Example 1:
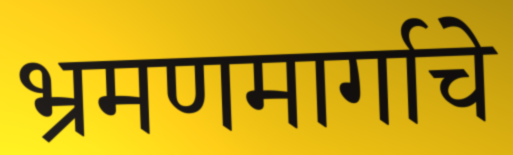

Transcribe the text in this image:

भ्रमणमार्गाचे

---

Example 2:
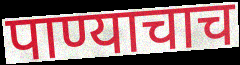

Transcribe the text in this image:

पाण्याचाच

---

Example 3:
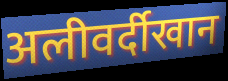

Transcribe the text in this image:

अलीवर्दीखान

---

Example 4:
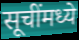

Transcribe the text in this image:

सूचींमध्ये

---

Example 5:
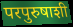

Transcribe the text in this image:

परपुरुषाशी